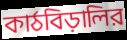
কাঠবিড়ালির